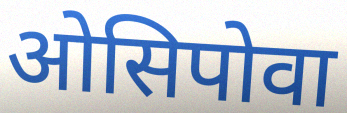
ओसिपोवा